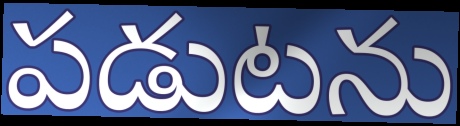
పడుటను